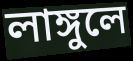
লাঙ্গুলে